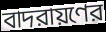
বাদরায়ণের